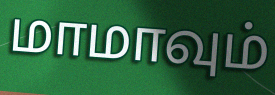
மாமாவும்